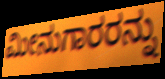
ಮೀನುಗಾರರನ್ನು